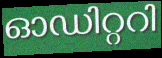
ഓഡിറ്ററി